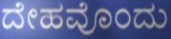
ದೇಹವೊಂದು